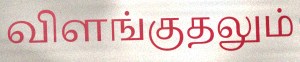
விளங்குதலும்